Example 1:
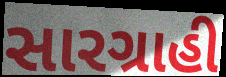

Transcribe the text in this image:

સારગ્રાહી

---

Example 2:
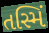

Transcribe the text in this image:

તસ્મિં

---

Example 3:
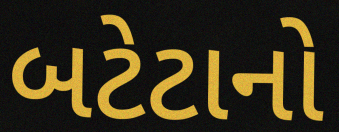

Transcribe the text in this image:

બટેટાનો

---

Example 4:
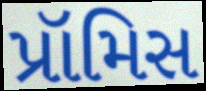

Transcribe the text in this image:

પ્રૉમિસ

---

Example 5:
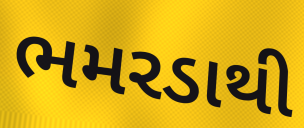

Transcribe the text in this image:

ભમરડાથી